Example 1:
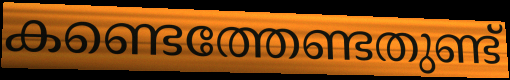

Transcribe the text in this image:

കണ്ടെത്തേണ്ടതുണ്ട്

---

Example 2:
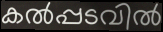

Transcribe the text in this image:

കൽപ്പടവിൽ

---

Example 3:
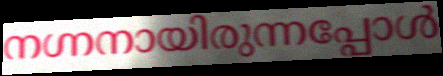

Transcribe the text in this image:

നഗ്നനായിരുന്നപ്പോൾ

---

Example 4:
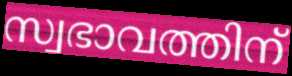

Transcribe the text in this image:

സ്വഭാവത്തിന്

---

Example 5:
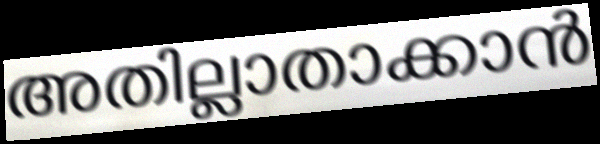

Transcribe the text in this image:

അതില്ലാതാക്കാൻ